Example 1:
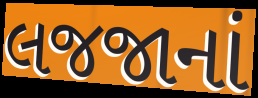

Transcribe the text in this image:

લજજાનાં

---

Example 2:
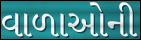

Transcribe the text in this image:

વાળાઓની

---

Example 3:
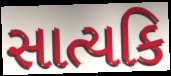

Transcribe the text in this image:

સાત્યકિ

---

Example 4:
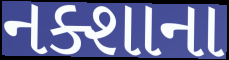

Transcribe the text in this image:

નક્શાના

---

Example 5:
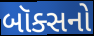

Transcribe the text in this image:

બૉક્સનો